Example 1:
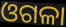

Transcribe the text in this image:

ଓଗଳା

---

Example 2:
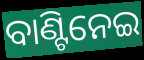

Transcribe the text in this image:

ବାଣ୍ଟିନେଇ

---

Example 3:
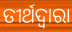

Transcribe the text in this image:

ତୀର୍ଥଦ୍ବାରା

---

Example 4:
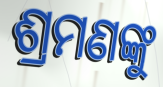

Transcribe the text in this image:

ଶ୍ରମଣଙ୍କୁ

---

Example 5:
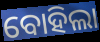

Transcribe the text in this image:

ବୋହିଲା